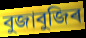
বুজাবুজিৰ